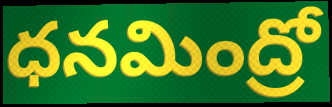
ధనమింద్రో